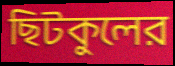
ছিটকুলের